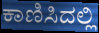
ಕಾಣಿಸಿದಲ್ಲಿ